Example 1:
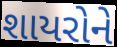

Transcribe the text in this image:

શાયરોને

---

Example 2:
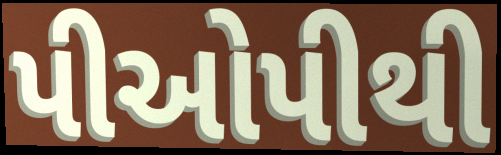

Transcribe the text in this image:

પીઓપીથી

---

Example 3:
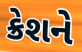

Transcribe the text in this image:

ક્રેશને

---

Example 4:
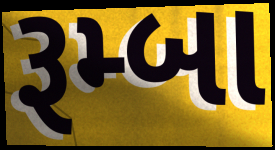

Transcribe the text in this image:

રૂમ્બા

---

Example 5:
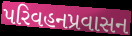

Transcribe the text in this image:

પરિવહનપ્રવાસન